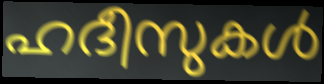
ഹദീസുകൾ